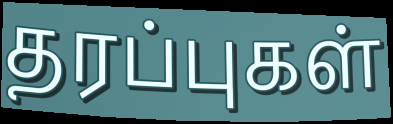
தரப்புகள்